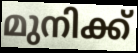
മുനിക്ക്